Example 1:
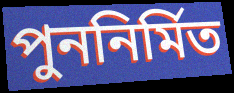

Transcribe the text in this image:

পুননির্মিত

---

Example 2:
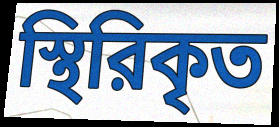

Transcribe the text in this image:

স্থিরিকৃত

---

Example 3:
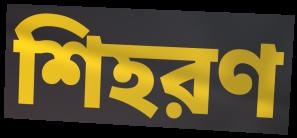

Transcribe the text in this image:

শিহরণ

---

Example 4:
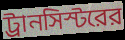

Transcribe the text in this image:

ট্রানসিস্টরের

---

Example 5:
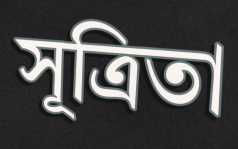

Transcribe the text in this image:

সূত্রিতা